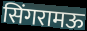
सिंगरामऊ